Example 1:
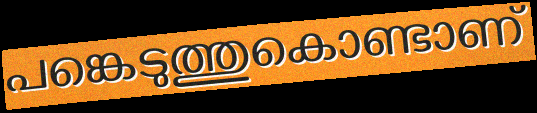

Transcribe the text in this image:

പങ്കെടുത്തുകൊണ്ടാണ്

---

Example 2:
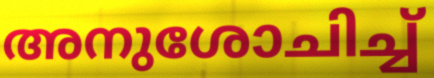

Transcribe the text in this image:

അനുശോചിച്ച്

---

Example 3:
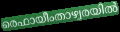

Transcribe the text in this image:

രെഫായീംതാഴ്വരയിൽ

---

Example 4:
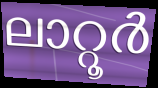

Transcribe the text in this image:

ലാറ്റൂർ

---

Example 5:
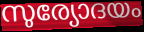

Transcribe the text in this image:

സുര്യോദയം